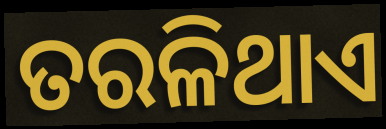
ତରଳିଥାଏ